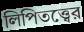
লিপিতত্ত্বের